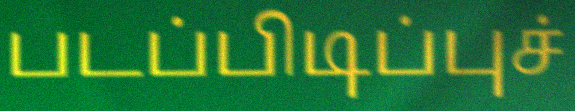
படப்பிடிப்புச்